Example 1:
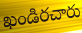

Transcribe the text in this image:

ఖండిరచారు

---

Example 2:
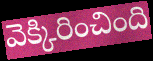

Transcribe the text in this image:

వెక్కిరించింది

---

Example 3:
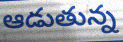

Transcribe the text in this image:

ఆడుతున్న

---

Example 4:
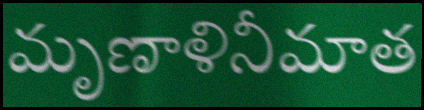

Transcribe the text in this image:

మృణాళినీమాత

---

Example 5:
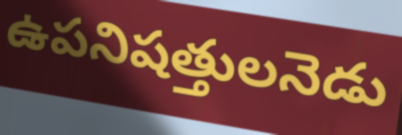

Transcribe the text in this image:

ఉపనిషత్తులనెడు